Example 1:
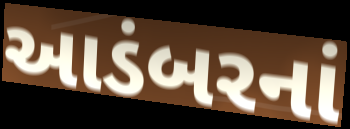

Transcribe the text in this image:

આડંબરનાં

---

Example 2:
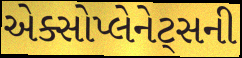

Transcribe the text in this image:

એક્સોપ્લેનેટ્સની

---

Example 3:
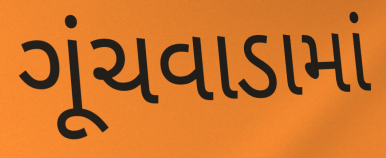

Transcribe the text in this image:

ગૂંચવાડામાં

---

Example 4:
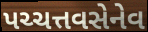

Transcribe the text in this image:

પચ્ચત્તવસેનેવ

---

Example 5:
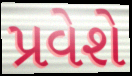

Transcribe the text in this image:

પ્રવેશે